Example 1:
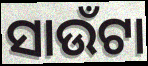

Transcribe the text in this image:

ସାଉଁଟା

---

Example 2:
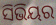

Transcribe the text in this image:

ସିଭିୟର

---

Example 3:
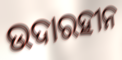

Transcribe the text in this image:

ଉଦାରହୀନ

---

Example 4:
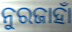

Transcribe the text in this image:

ନୁରଜାହାଁ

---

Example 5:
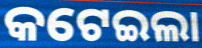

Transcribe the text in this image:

କଟେଇଲା